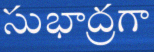
సుభాద్రగా